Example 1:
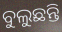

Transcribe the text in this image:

ବୁଲୁଛନ୍ତି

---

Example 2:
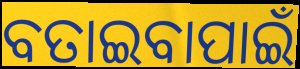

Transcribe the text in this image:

ବତାଇବାପାଇଁ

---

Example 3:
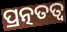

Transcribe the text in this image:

ପ୍ରତ୍ନତତ୍ୱ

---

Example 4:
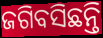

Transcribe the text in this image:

ଜଗିବସିଛନ୍ତି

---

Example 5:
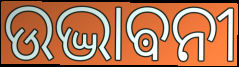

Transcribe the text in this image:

ଉଦ୍ଭାଵନୀ